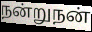
நன்றுநன்